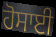
ਹੋਸਾਈ